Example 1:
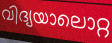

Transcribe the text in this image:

വിദ്യയാലൊറ്റ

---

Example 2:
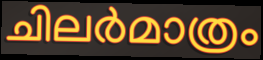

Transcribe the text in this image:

ചിലർമാത്രം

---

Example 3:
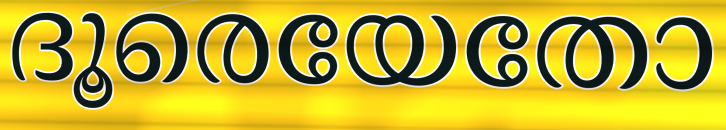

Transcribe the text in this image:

ദൂരെയേതോ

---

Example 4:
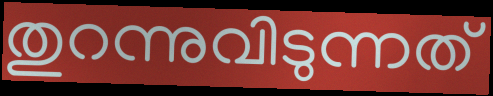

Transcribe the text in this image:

തുറന്നുവിടുന്നത്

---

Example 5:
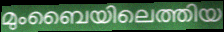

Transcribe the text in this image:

മുംബൈയിലെത്തിയ